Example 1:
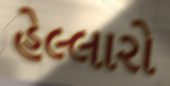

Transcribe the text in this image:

હેલ્લારો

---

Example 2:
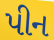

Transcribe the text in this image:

પીન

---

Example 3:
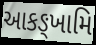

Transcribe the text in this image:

આકઙ્ખામિ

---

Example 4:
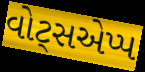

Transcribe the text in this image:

વોટ્સએપ્પ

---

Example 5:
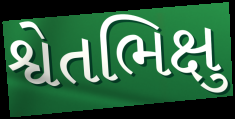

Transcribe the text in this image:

શ્વેતભિક્ષુ